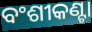
ବଂଶୀକଣ୍ଟା